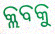
କ୍ଲବକୁ